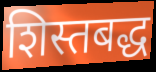
शिस्तबद्ध